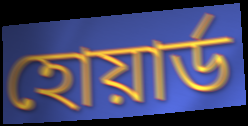
হোয়ার্ড